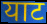
याट